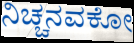
ನಿಚ್ಚನವಕೋ